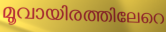
മൂവായിരത്തിലേറെ